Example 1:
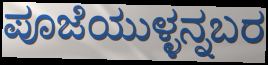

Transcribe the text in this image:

ಪೂಜೆಯುಳ್ಳನ್ನಬರ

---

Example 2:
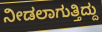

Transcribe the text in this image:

ನೀಡಲಾಗುತ್ತಿದ್ದು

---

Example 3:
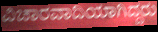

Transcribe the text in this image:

ವಿಚಾರವಾದಿಯಾಗಿದ್ದರು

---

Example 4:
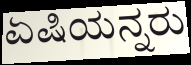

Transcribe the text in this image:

ಏಷಿಯನ್ನರು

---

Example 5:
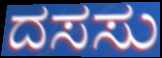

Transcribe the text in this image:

ದಸಸು